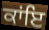
ਕਾਂਇ